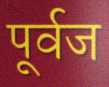
पूर्वज